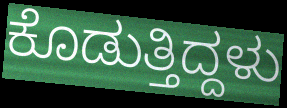
ಕೊಡುತ್ತಿದ್ದಳು